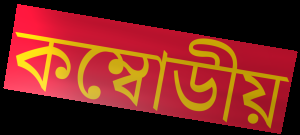
কম্বোডীয়